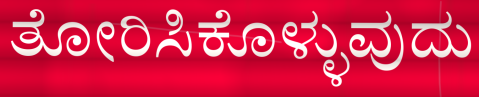
ತೋರಿಸಿಕೊಳ್ಳುವುದು